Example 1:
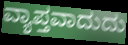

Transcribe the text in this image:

ವ್ಯಾಪ್ತವಾದುದು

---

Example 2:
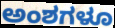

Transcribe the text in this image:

ಅಂಶಗಳೂ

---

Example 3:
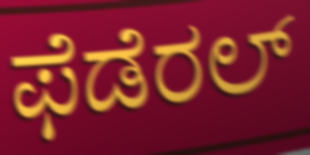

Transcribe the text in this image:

ಫೆಡೆರಲ್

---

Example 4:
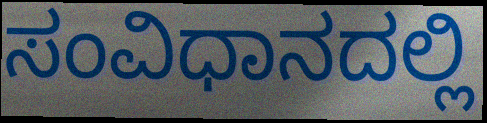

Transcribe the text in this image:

ಸಂವಿಧಾನದಲ್ಲಿ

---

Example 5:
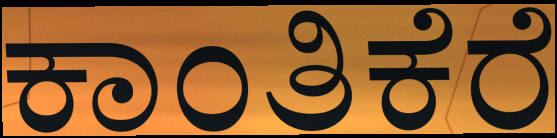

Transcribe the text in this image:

ಕಾಂತಿಕೆರೆ